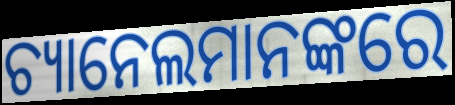
ଚ୍ୟାନେଲମାନଙ୍କରେ